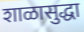
शाळासुद्धा